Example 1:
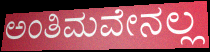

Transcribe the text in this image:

ಅಂತಿಮವೇನಲ್ಲ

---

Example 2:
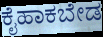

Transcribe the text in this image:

ಕೈಹಾಕಬೇಡ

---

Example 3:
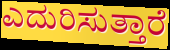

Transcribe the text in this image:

ಎದುರಿಸುತ್ತಾರೆ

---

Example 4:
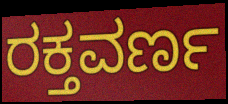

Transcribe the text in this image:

ರಕ್ತವರ್ಣ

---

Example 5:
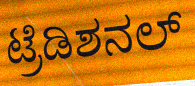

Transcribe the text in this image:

ಟ್ರೆಡಿಶನಲ್